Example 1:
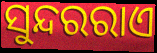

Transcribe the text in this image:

ସୁନ୍ଦରରାଏ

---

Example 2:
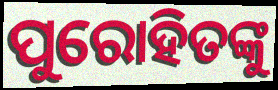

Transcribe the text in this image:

ପୁରୋହିତଙ୍କୁ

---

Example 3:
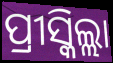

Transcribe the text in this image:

ପ୍ରୀସ୍କିଲ୍ଲା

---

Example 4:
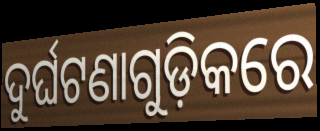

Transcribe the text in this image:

ଦୁର୍ଘଟଣାଗୁଡ଼ିକରେ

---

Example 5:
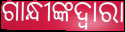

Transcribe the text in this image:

ଗାନ୍ଧୀଙ୍କଦ୍ଵାରା